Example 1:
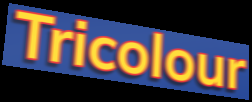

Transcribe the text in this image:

Tricolour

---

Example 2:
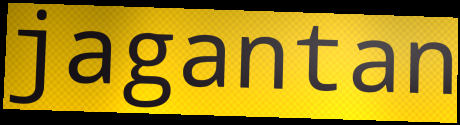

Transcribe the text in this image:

jagantan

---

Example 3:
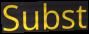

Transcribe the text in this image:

Subst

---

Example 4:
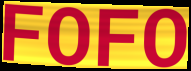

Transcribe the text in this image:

FOFO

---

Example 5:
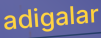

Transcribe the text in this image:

adigalar